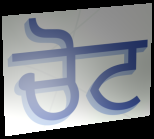
ਚੋਟ